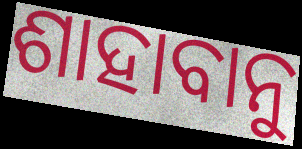
ଶାହାବାନୁ